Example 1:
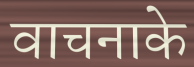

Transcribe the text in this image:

वाचनाके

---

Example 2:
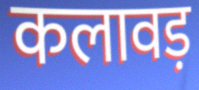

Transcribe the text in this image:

कलावड़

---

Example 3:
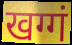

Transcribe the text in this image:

खग्गं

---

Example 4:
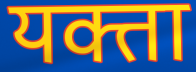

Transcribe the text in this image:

यक्ता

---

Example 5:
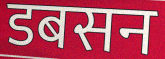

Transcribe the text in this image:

डबसन